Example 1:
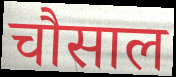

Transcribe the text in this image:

चौसाल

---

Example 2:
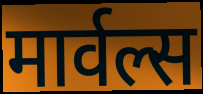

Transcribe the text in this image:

मार्वल्स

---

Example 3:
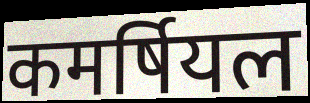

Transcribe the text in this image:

कमर्षियल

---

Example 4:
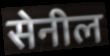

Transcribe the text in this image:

सेनील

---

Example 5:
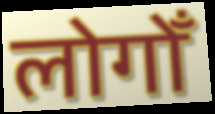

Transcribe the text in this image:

लोगोँ